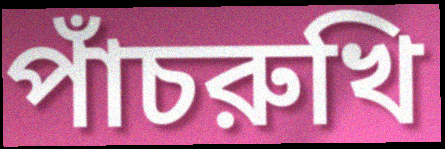
পাঁচরুখি